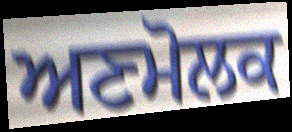
ਅਣਮੋਲਕ